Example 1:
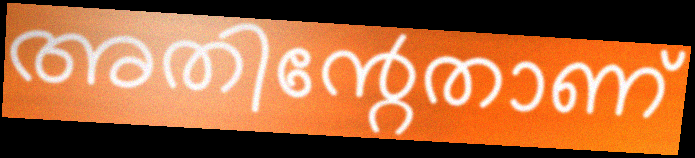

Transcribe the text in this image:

അതിന്റേതാണ്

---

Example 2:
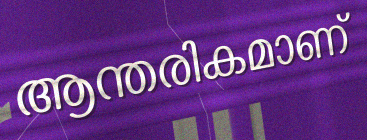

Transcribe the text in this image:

ആന്തരികമാണ്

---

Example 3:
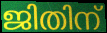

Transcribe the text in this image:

ജിതിന്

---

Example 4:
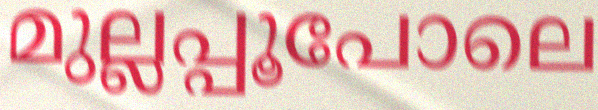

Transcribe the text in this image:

മുല്ലപ്പൂപോലെ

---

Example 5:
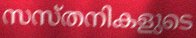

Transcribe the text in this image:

സസ്തനികളുടെ